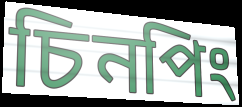
চিনপিং